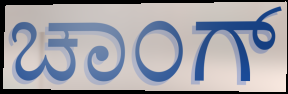
ಚಾಂಗ್